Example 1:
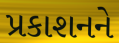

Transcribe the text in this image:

પ્રકાશનને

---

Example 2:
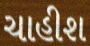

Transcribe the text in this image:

ચાહીશ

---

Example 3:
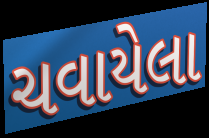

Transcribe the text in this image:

ચવાયેલા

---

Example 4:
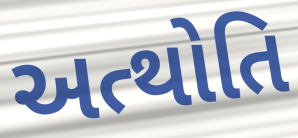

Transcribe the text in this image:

અત્થોતિ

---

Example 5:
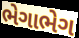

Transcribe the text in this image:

ભેગાભેગ